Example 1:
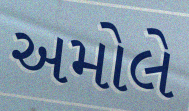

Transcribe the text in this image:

અમોલે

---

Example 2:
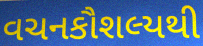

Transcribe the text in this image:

વચનકૌશલ્યથી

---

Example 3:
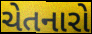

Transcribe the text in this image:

ચેતનારો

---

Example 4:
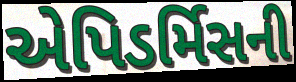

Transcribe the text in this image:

એપિડર્મિસની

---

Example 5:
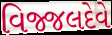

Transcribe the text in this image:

વિજ્જલદેવે